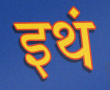
इथं